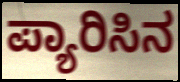
ಪ್ಯಾರಿಸಿನ